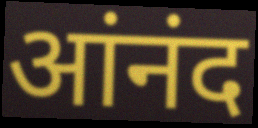
आंनंद